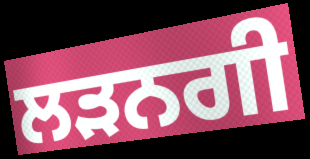
ਲੜਨਗੀ